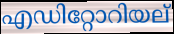
എഡിറ്റോറിയല്